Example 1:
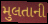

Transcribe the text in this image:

મુલતાની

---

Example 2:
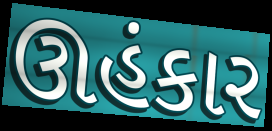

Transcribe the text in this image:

ઊહંકાર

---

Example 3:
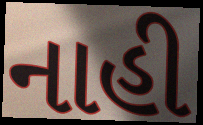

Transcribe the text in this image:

નાહી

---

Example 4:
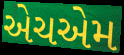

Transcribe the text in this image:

એચએમ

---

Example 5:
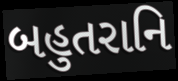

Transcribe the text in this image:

બહુતરાનિ